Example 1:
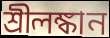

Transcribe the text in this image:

শ্রীলঙ্কান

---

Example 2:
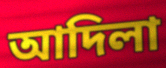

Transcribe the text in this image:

আদিলা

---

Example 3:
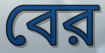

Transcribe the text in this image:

বের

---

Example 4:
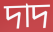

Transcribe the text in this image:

দাদ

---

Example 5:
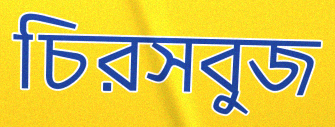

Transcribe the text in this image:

চিরসবুজ